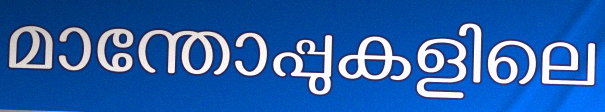
മാന്തോപ്പുകളിലെ